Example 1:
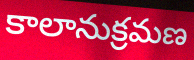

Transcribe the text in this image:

కాలానుక్రమణ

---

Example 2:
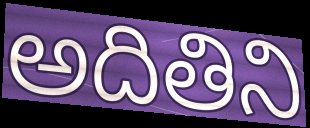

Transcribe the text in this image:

అదితిని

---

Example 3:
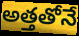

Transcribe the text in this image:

అత్తతోనే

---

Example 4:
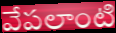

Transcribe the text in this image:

వేపలాంటి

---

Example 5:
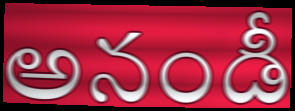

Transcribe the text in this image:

అనండీ